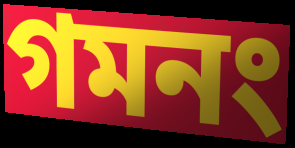
গমনং